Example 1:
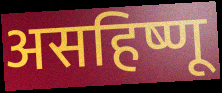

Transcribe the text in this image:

असहिष्णू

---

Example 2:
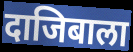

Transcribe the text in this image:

दाजिबाला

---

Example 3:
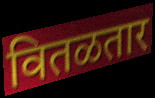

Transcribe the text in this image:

वितळतार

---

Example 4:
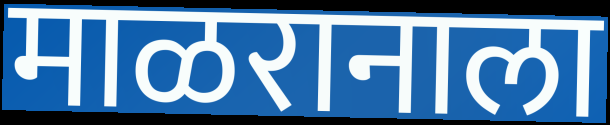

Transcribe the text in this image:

माळरानाला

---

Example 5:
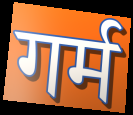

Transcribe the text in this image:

गर्म